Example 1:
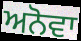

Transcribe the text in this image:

ਅਨੋਵਾ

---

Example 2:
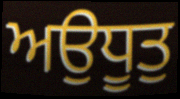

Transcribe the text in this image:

ਅਉਧੂਤੁ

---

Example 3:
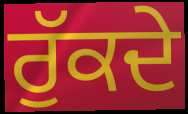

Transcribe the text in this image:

ਰੁੱਕਦੇ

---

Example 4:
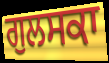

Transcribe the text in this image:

ਗੁਲਸਕਾ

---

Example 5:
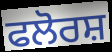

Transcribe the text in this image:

ਫਲੋਰਸ਼